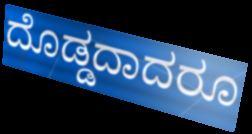
ದೊಡ್ಡದಾದರೂ